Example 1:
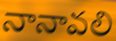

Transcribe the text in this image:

నానావలి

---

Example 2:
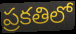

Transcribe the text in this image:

ప్రకతిలో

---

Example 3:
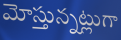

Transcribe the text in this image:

మోస్తున్నట్లుగా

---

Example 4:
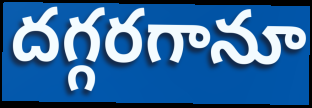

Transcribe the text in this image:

దగ్గరగానూ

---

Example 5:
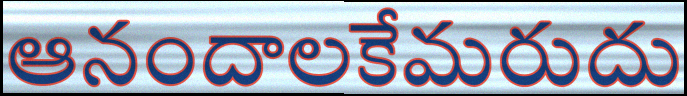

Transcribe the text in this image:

ఆనందాలకేమరుదు